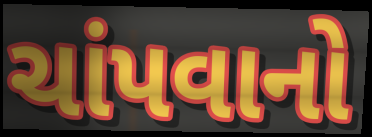
ચાંપવાનો